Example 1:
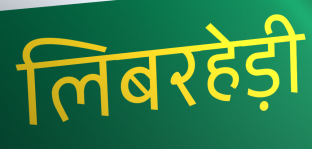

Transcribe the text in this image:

लिबरहेड़ी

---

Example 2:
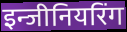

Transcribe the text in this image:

इन्जीनियरिंग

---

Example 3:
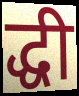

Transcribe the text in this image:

द्धी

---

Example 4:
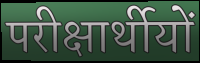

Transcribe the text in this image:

परीक्षार्थीयों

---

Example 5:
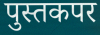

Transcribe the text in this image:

पुस्तकपर